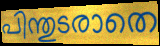
പിന്തുടരാതെ